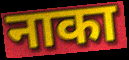
नाका